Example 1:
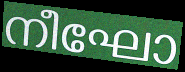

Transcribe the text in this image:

നീഘോ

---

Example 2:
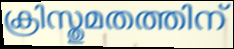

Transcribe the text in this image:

ക്രിസ്തുമതത്തിന്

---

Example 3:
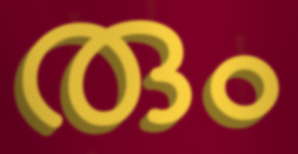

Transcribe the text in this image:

രും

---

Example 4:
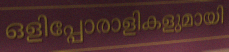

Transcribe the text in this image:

ഒളിപ്പോരാളികളുമായി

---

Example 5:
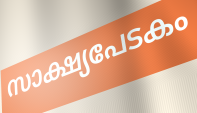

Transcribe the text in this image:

സാക്ഷ്യപേടകം